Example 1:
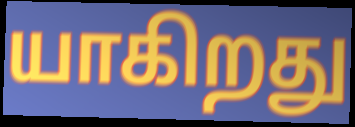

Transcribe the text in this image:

யாகிறது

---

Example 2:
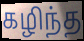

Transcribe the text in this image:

கழிந்த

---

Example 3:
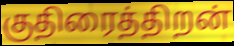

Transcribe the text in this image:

குதிரைத்திறன்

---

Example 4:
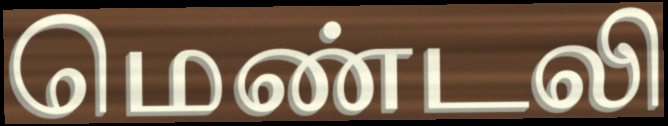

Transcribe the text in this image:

மெண்டலி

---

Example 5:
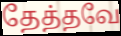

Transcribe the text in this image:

தேத்தவே